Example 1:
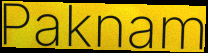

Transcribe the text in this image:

Paknam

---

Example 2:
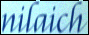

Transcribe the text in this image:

nilaich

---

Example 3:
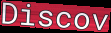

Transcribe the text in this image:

Discov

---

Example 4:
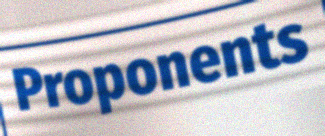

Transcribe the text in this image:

Proponents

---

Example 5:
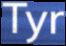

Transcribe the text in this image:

Tyr